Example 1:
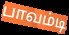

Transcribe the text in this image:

பாவம்டி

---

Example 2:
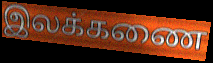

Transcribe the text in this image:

இலக்கணை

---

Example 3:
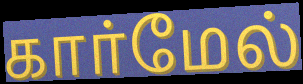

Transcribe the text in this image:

கார்மேல்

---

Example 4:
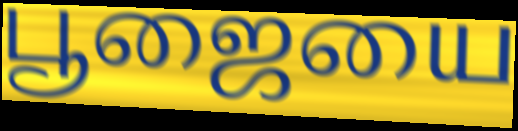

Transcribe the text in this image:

பூஜையை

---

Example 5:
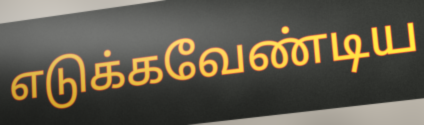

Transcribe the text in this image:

எடுக்கவேண்டிய